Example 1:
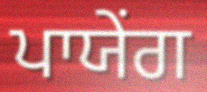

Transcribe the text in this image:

ਪਾਯੇਂਗ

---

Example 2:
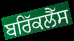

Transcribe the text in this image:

ਬਰਿੱਕਲੈੱਸ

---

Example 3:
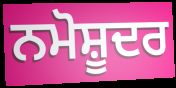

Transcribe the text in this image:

ਨਮੋਸ਼ੂਦਰ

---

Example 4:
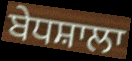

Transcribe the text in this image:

ਬੇਧਸ਼ਾਲਾ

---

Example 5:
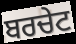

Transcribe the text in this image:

ਬਰਚੇਟ